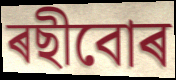
ৰছীবোৰ